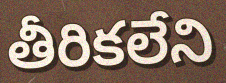
తీరికలేని